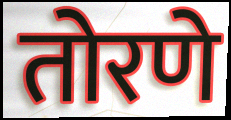
तोरणे